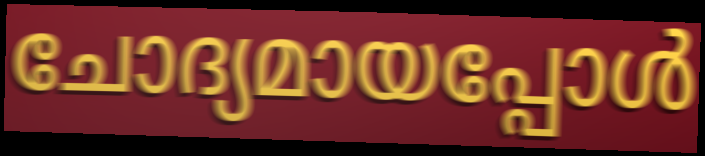
ചോദ്യമായപ്പോൾ